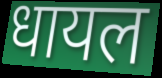
धायल